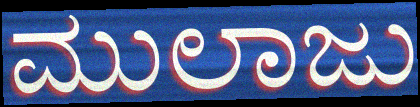
ಮುಲಾಜು